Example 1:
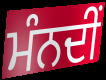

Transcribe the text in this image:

ਮੰਨਦੀਂ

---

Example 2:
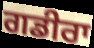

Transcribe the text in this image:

ਗਡੀਰਾ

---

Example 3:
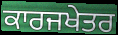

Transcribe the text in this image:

ਕਾਰਜਖੇਤਰ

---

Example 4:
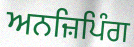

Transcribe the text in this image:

ਅਨਜ਼ਿਪਿੰਗ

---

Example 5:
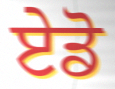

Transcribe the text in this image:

ਏਡੋ